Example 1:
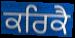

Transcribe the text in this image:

ਕਰਿਕੈ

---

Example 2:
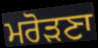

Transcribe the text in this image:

ਮਰੋੜਣਾ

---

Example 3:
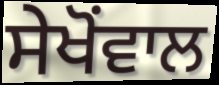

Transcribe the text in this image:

ਸੇਖੋਂਵਾਲ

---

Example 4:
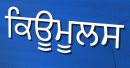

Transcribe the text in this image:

ਕਿਊਮੂਲਸ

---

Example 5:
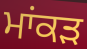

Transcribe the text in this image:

ਮਾਂਕੜ